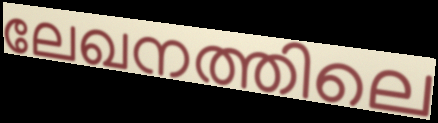
ലേഖനത്തിലെ